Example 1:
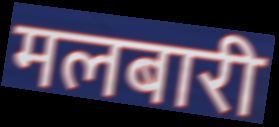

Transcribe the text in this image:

मलबारी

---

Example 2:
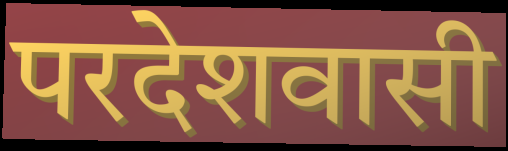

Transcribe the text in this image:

परदेशवासी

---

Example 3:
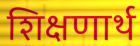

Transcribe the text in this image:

शिक्षणार्थ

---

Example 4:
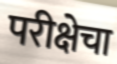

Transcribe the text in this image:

परीक्षेचा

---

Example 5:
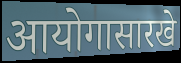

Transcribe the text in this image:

आयोगासारखे